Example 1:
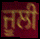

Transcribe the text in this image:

ਜੂਲੀ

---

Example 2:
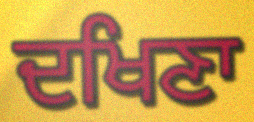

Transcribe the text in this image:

ਦਖਿਣਾ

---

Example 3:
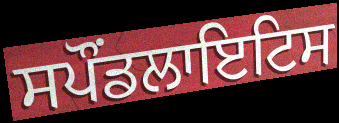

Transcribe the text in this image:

ਸਪੌਂਡਲਾਇਟਿਸ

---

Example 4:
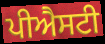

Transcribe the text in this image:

ਪੀਐਸਟੀ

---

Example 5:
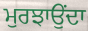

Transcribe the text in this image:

ਮੁਰਝਾਉਂਦਾ